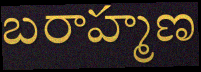
బరాహ్మణ